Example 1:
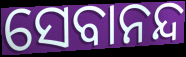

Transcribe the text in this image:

ସେବାନନ୍ଦ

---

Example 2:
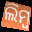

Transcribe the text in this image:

ଲିମ୍ବ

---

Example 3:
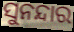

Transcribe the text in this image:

ସୁନନ୍ଦାର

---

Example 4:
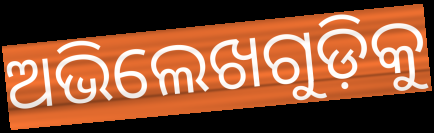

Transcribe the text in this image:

ଅଭିଲେଖଗୁଡ଼ିକୁ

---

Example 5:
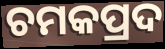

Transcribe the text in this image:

ଚମକପ୍ରଦ